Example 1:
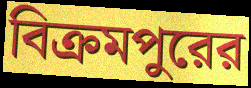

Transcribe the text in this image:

বিক্রমপুরের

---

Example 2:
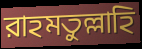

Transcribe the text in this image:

রাহমতুল্লাহি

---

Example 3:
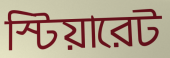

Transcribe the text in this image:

স্টিয়ারেট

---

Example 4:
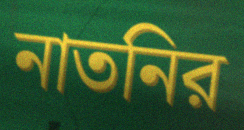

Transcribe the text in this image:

নাতনির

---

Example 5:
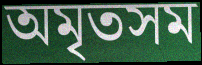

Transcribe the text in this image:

অমৃতসম